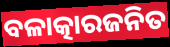
ବଳାତ୍କାରଜନିତ